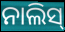
ନାଲିସ୍